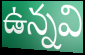
ఉన్నవి